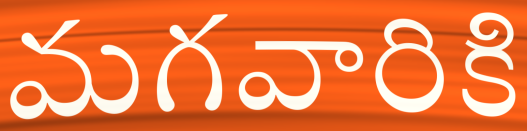
మగవారికి